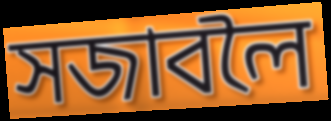
সজাবলৈ